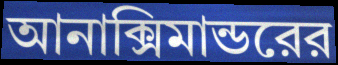
আনাক্সিমান্ডরের